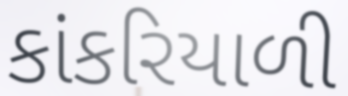
કાંકરિયાળી